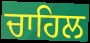
ਚਾਹਿਲ